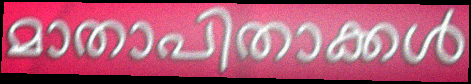
മാതാപിതാക്കൾ